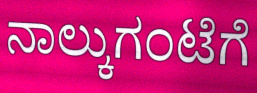
ನಾಲ್ಕುಗಂಟೆಗೆ